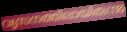
വ്യസനത്തിലായിരുന്നു